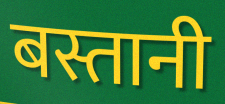
बस्तानी